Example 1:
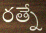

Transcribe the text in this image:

రత్నే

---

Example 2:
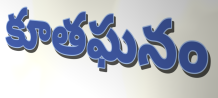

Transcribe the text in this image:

కూతఘనం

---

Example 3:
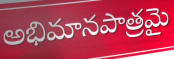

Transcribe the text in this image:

అభిమానపాత్రమై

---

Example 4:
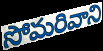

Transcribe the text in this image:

సోమరివాని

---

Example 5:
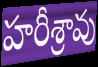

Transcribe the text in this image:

హరీశ్రావు